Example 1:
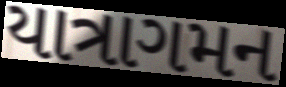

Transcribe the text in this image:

યાત્રાગમન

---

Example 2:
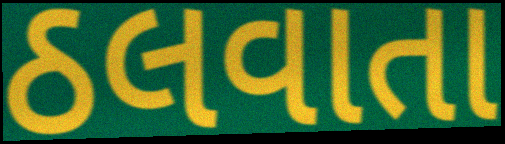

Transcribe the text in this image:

ઠલવાતા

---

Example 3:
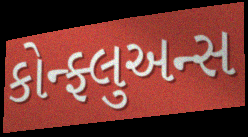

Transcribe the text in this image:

કોન્ફ્લુઅન્સ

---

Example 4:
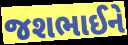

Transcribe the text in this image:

જશભાઈને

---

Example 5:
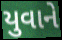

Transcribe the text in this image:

યુવાને